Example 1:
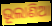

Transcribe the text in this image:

ଭୂଲାଣିଆ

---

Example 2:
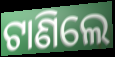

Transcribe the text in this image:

ଟାଣିଲେ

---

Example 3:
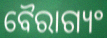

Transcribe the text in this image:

ବୈରାଗ୍ୟଂ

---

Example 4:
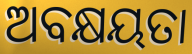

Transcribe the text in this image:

ଅବକ୍ଷୟତା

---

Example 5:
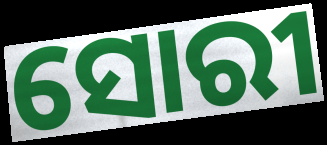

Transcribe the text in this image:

ସୋରୀ